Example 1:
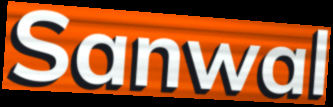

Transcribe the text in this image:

Sanwal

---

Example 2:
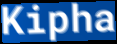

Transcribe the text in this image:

Kipha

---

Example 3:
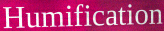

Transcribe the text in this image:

Humification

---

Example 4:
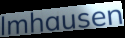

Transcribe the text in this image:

Imhausen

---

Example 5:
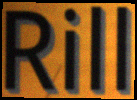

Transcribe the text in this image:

Rill